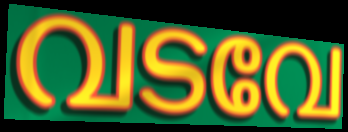
വടവേ